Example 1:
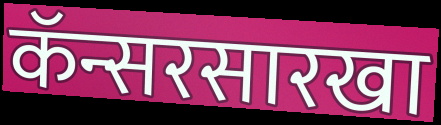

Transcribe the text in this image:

कॅन्सरसारखा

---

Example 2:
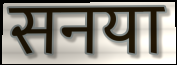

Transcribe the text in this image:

सनया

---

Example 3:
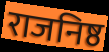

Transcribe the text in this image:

राजनिष्ठ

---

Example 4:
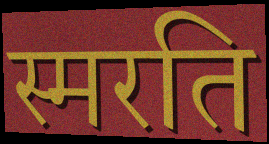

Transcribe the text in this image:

स्मरति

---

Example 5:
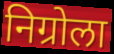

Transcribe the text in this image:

निग्रोला